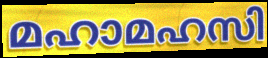
മഹാമഹസി